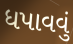
ધપાવવું